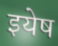
इयेष